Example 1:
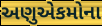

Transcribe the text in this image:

અણુએકમોના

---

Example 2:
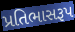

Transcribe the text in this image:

પ્રતિભાસરૂપ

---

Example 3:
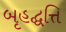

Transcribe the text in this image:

બૃહદ્ઘત્તિ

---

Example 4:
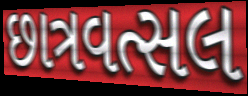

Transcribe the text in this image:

છાત્રવત્સલ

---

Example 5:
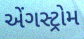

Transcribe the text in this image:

એંગસ્ટ્રોમ